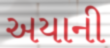
અયાની